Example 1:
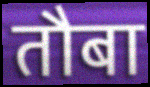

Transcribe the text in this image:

तौबा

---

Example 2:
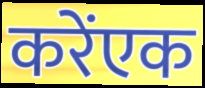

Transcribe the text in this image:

करेंएक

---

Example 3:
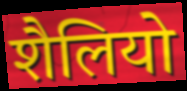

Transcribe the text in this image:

शैलियो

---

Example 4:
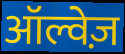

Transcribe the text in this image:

ऑल्वेज़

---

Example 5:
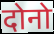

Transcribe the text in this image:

दोनो